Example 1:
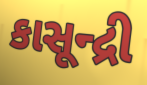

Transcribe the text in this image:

કાસૂન્દ્રી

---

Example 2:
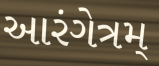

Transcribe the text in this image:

આરંગેત્રમ્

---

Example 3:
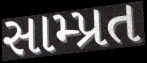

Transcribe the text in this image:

સામ્પ્રત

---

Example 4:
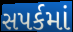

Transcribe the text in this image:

સપર્કમાં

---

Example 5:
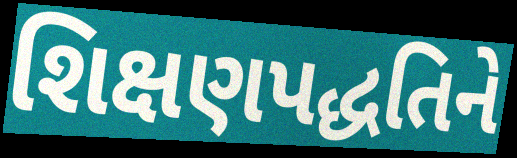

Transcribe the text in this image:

શિક્ષણપદ્ધતિને